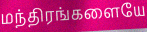
மந்திரங்களையே